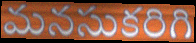
మనసుకరిగి